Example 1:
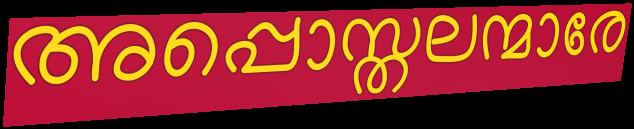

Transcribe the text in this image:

അപ്പൊസ്തലന്മാരേ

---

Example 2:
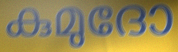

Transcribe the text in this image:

കുമുദോ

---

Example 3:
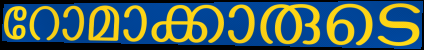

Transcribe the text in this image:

റോമാക്കാരുടെ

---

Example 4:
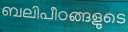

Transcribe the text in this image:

ബലിപീഠങ്ങളുടെ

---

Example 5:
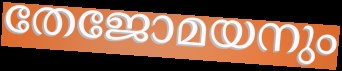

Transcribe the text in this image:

തേജോമയനും